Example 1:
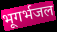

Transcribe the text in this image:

भूगर्भजल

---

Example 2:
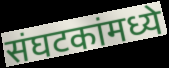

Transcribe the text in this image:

संघटकांमध्ये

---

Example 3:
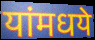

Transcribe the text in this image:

यांमधये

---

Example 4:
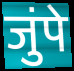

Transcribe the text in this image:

जुंपे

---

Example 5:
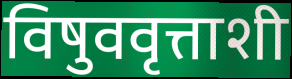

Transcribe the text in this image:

विषुववृत्ताशी